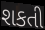
શકતી